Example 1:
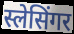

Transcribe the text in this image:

स्लेसिंगर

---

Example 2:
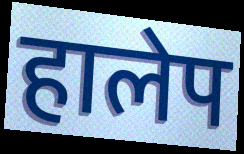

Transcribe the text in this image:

हालेप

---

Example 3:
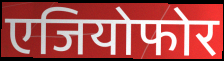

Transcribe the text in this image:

एजियोफोर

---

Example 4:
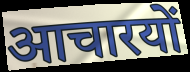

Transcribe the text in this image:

आचारयों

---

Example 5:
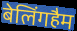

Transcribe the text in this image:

बेलिंगहैम